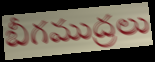
బీగముద్రలు